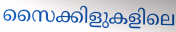
സൈക്കിളുകളിലെ